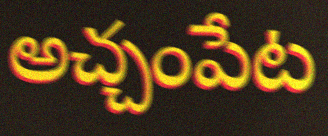
అచ్చంపేట